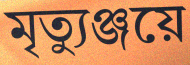
মৃত্যুঞ্জয়ে